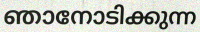
ഞാനോടിക്കുന്ന